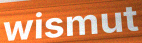
wismut